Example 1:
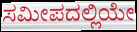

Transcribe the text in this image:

ಸಮೀಪದಲ್ಲಿಯೇ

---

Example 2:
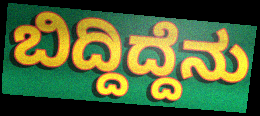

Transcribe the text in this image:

ಬಿದ್ದಿದ್ದೆನು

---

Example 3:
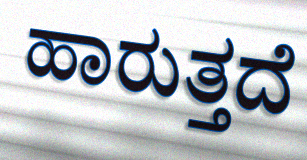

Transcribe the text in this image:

ಹಾರುತ್ತದೆ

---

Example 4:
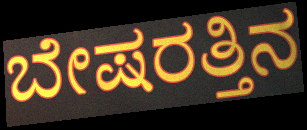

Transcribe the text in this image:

ಬೇಷರತ್ತಿನ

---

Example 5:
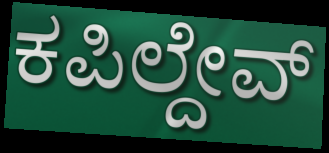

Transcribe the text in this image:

ಕಪಿಲ್ದೇವ್